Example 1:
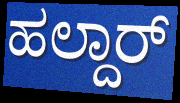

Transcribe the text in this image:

ಹಲ್ದಾರ್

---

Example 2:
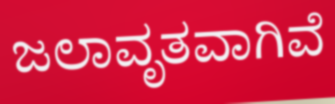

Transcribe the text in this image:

ಜಲಾವೃತವಾಗಿವೆ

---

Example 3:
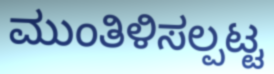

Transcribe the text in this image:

ಮುಂತಿಳಿಸಲ್ಪಟ್ಟ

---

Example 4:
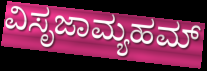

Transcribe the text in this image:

ವಿಸೃಜಾಮ್ಯಹಮ್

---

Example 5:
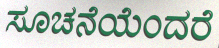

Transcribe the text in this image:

ಸೂಚನೆಯೆಂದರೆ